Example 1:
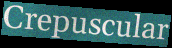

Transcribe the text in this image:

Crepuscular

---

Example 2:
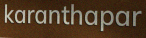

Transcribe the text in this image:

karanthapar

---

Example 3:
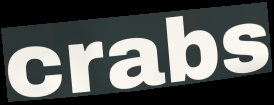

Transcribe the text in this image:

crabs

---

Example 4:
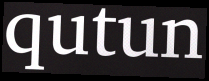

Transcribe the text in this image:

qutun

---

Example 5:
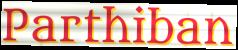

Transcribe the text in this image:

Parthiban